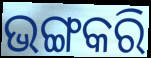
ଭଙ୍ଗକରି